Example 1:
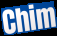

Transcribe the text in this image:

Chim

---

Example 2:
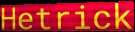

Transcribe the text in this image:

Hetrick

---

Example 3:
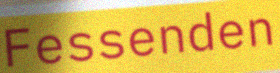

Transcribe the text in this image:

Fessenden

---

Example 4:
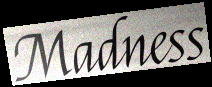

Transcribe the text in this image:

Madness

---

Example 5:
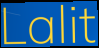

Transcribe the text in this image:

Lalit